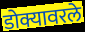
डोक्यावरले